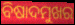
ବିଷାଦମୁଖର